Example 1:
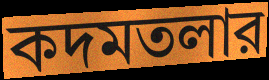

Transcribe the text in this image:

কদমতলার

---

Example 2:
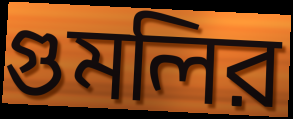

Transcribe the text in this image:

গুমলির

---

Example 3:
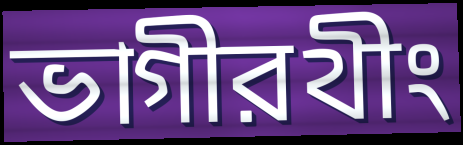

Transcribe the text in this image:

ভাগীরথীং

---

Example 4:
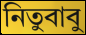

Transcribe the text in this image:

নিতুবাবু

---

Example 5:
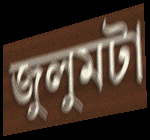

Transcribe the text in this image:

জুলুমটা